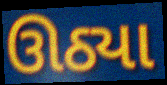
ઊઠ્યા